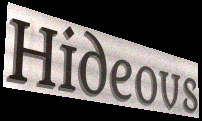
Hideous